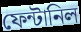
ফেন্টানিল